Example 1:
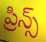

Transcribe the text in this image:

ప్రిన్స్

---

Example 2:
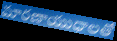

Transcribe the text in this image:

మారణాయుధాలతో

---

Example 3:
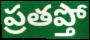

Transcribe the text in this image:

ప్రతప్తో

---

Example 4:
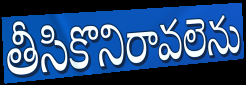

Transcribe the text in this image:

తీసికొనిరావలెను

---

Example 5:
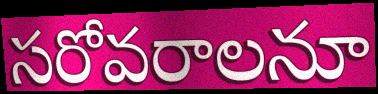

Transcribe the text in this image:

సరోవరాలనూ